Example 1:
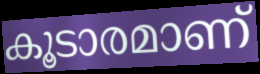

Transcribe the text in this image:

കൂടാരമാണ്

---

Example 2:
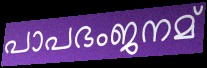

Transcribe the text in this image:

പാപഭംജനമ്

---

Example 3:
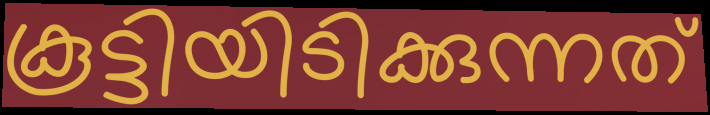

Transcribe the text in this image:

കൂട്ടിയിടിക്കുന്നത്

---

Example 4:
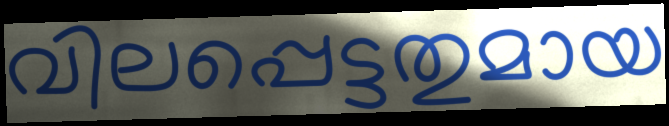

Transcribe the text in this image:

വിലപ്പെട്ടതുമായ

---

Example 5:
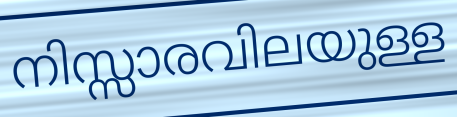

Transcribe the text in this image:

നിസ്സാരവിലയുള്ള